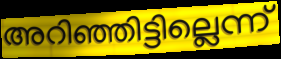
അറിഞ്ഞിട്ടില്ലെന്ന്